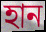
হান